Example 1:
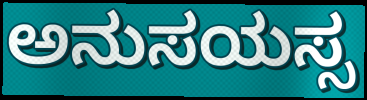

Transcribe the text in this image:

ಅನುಸಯಸ್ಸ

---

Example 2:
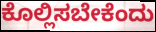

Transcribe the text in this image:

ಕೊಲ್ಲಿಸಬೇಕೆಂದು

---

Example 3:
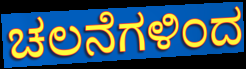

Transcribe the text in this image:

ಚಲನೆಗಳಿಂದ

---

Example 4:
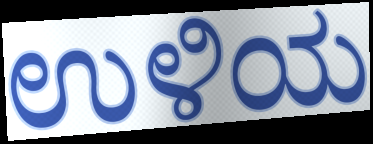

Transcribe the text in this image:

ಉಳಿಯ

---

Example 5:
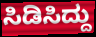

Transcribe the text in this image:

ಸಿಡಿಸಿದ್ದು